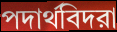
পদার্থবিদরা